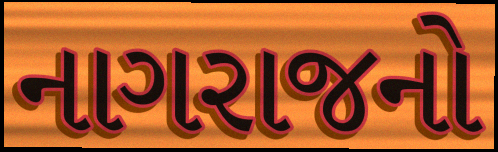
નાગરાજનો